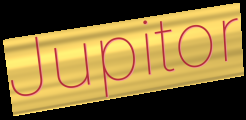
Jupitor